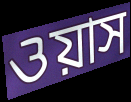
ওয়াস